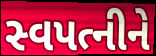
સ્વપત્નીને